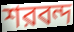
শরবন্দ